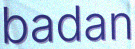
badan